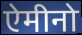
ऐमीनो